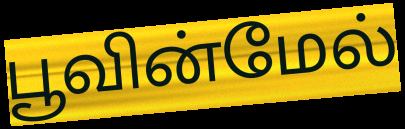
பூவின்மேல்